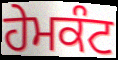
ਹੇਮਕੰਟ